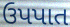
ઉપપાત